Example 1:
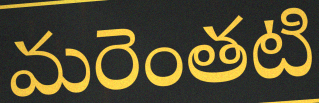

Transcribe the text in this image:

మరెంతటి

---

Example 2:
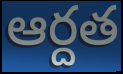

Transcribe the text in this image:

ఆర్దత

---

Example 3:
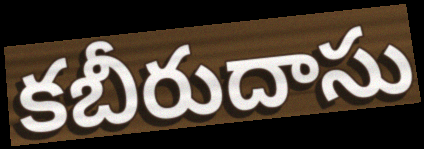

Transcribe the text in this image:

కబీరుదాసు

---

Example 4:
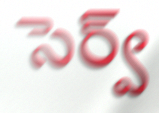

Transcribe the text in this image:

సెర్వ్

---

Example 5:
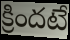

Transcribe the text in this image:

క్రిందటే